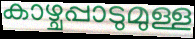
കാഴ്ചപ്പാടുമുള്ള